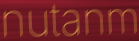
nutanm